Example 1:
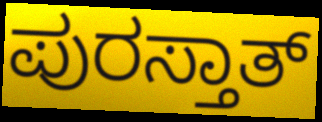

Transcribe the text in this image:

ಪುರಸ್ತಾತ್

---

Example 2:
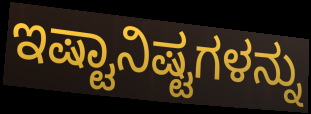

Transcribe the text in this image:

ಇಷ್ಟಾನಿಷ್ಟಗಳನ್ನು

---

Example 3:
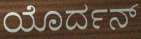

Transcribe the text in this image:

ಯೊರ್ದನ್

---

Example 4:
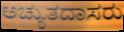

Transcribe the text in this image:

ಅಚ್ಯುತದಾಸರು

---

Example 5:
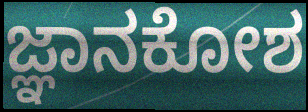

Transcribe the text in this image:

ಜ್ಞಾನಕೋಶ